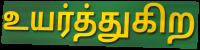
உயர்த்துகிற